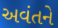
અવંતને